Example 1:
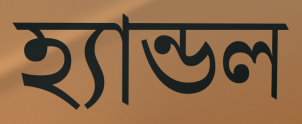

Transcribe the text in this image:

হ্যান্ডল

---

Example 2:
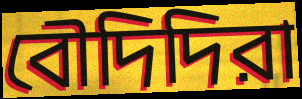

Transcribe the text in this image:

বৌদিদিরা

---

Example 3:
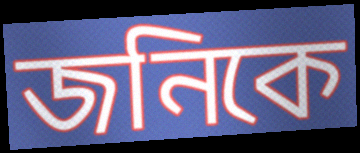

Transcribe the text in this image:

জনিকে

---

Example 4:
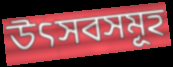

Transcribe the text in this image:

উৎসবসমূহ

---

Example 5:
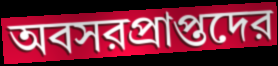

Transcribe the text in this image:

অবসরপ্রাপ্তদের